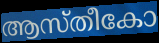
ആസ്തീകോ